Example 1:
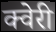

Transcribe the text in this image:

क्वेरी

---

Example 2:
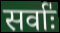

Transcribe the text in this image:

सर्वाः॑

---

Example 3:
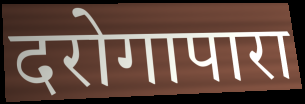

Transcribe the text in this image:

दरोगापारा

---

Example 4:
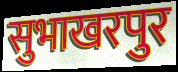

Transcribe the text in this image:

सुभाखरपुर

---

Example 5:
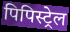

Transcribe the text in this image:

पिपिस्ट्रेल